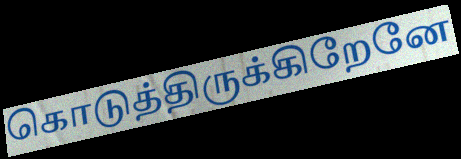
கொடுத்திருக்கிறேனே